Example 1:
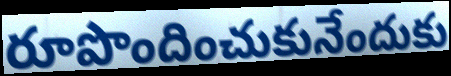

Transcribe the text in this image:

రూపొందించుకునేందుకు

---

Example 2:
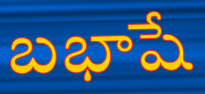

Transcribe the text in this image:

బభాషే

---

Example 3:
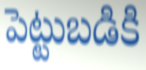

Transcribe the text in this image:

పెట్టుబడికి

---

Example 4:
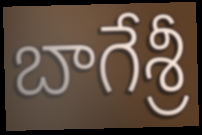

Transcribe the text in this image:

బాగేశ్రీ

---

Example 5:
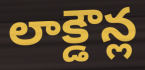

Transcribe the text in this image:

లాక్డౌన్ల